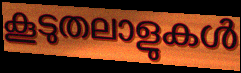
കൂടുതലാളുകൾ